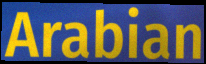
Arabian